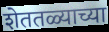
शेततळ्याच्या